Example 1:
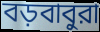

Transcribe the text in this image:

বড়বাবুরা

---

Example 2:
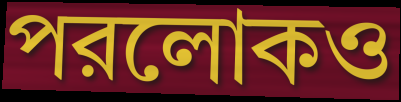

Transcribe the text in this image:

পরলোকও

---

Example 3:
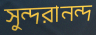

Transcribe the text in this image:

সুন্দরানন্দ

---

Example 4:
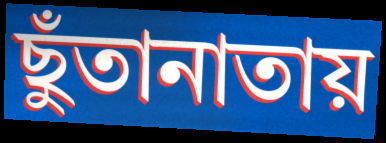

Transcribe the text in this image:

ছুঁতানাতায়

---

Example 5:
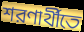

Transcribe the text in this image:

শরণার্থীতে